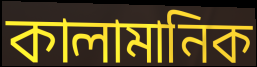
কালামানিক